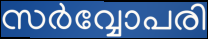
സർവ്വോപരി